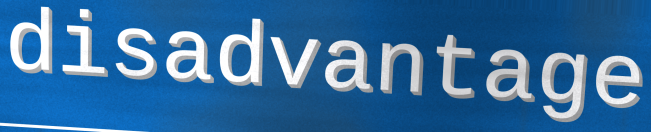
disadvantage